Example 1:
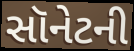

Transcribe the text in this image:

સૉનેટની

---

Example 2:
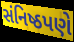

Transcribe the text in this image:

સંનિષ્ઠપણે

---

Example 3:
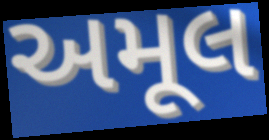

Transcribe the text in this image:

અમૂલ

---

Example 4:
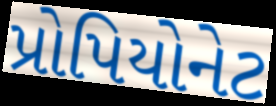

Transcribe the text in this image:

પ્રોપિયોનેટ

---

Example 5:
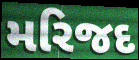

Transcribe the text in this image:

મરિજદ